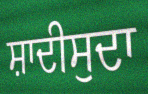
ਸ਼ਾਦੀਸੁਦਾ